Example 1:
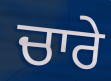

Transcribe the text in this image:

ਚਾਰੇ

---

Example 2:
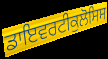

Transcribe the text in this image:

ਡਾਇਵਰਟੀਕੁਲੋਸਿਸ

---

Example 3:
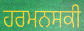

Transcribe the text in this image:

ਹਰਮਨਸਕੀ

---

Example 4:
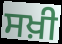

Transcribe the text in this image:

ਸਖ਼ੀ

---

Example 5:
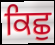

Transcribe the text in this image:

ਕਿਛੁ